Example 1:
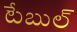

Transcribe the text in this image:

టేబుల్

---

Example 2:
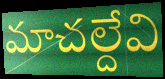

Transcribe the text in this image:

మాచల్దేవి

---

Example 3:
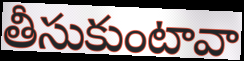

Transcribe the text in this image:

తీసుకుంటావా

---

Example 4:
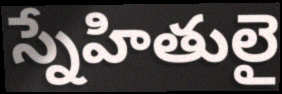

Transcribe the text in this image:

స్నేహితులై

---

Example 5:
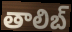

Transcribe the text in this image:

తాలిబ్